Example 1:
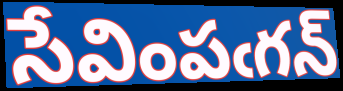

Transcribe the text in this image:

సేవింపఁగన్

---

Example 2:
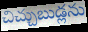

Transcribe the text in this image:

చిచ్చుబుడ్లను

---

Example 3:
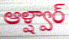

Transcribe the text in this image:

ఆళ్ష్వార్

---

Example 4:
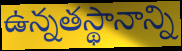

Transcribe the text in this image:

ఉన్నతస్థానాన్ని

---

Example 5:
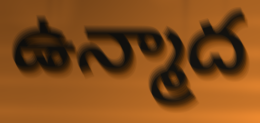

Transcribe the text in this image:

ఉన్మాద